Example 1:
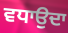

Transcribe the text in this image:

ਵਧਾਉਦਾ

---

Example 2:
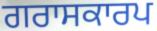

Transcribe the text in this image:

ਗਰਾਸਕਾਰਪ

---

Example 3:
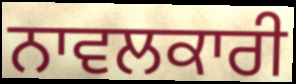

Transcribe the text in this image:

ਨਾਵਲਕਾਰੀ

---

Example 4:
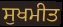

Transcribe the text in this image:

ਸੁਖਮੀਤ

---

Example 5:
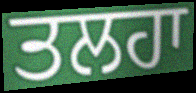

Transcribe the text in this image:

ਤਲਹਾ